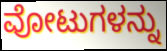
ವೋಟುಗಳನ್ನು